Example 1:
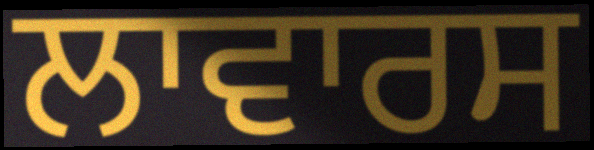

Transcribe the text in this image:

ਲਾਵਾਰਸ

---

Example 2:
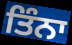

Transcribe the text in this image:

ਤਿੰਨਾ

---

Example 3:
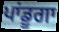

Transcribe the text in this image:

ਪਾਂਡੂਗਾ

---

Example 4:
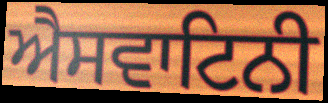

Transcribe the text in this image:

ਐਸਵਾਟਿਨੀ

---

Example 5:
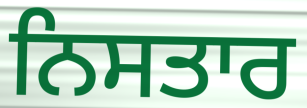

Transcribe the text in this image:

ਨਿਸਤਾਰ